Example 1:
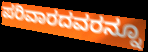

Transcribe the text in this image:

ಪರಿವಾರದವರನ್ನೂ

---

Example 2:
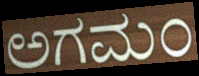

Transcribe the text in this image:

ಅಗಮಂ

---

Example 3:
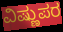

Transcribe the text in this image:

ವಿಷ್ಣುಪರ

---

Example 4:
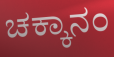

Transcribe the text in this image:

ಚಕ್ಕಾನಂ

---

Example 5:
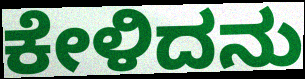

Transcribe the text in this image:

ಕೇಳಿದನು